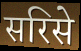
सरिसे